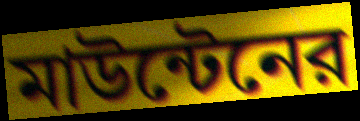
মাউন্টেনের